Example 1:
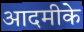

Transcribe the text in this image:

आदमीके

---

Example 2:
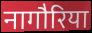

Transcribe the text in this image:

नागौरिया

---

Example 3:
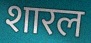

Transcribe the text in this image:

शारल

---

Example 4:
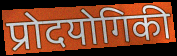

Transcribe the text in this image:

प्रोदयोगिकी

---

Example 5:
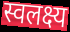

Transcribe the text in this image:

स्वलक्ष्य